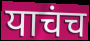
याचंच